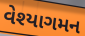
વેશ્યાગમન